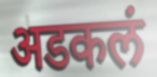
अडकलं